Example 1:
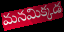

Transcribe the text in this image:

మనమిక్కడ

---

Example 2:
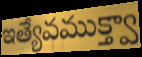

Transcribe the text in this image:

ఇత్యేవముక్త్వా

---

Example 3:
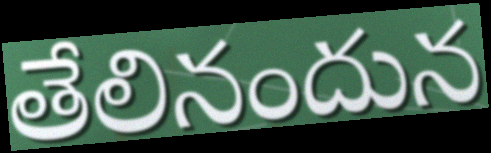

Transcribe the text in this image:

తేలినందున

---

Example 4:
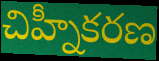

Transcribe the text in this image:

చిహ్నీకరణ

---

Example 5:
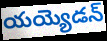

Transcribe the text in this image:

యయ్యెడన్